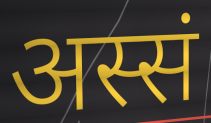
अस्सं